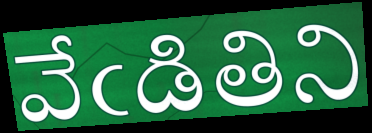
వేఁడితిని